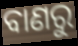
ବାଣରୁ